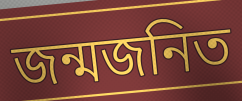
জন্মজনিত